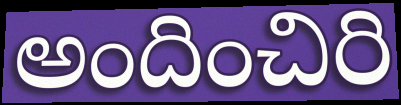
అందించిరి